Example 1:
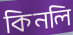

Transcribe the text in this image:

কিনলি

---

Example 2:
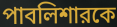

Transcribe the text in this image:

পাবলিশারকে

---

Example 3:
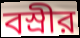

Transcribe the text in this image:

বস্রীর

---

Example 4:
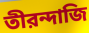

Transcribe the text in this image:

তীরন্দাজি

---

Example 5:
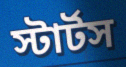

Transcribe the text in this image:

স্টার্টস